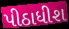
પીઠાધીશ